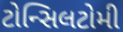
ટોન્સિલટોમી